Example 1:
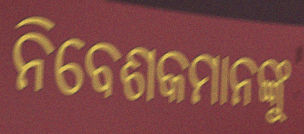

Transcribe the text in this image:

ନିବେଶକମାନଙ୍କୁ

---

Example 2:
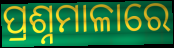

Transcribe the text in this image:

ପ୍ରଶ୍ନମାଳାରେ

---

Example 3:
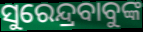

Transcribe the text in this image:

ସୁରେନ୍ଦ୍ରବାବୁଙ୍କ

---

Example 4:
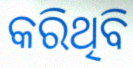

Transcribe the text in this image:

କରିଥିବି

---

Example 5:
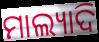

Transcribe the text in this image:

ମାଲ୍ୟାଦି